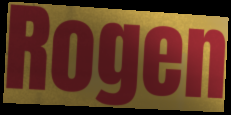
Rogen